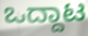
ಒದ್ದಾಟ